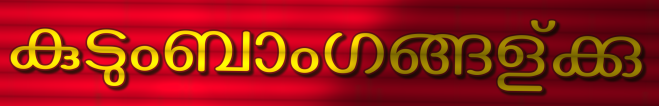
കുടുംബാംഗങ്ങള്ക്കു